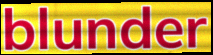
blunder